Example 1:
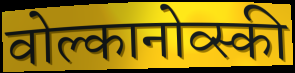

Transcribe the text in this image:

वोल्कानोव्स्की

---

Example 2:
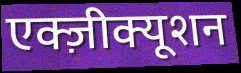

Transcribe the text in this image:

एक्ज़ीक्यूशन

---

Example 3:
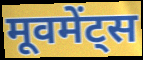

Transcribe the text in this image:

मूवमेंट्स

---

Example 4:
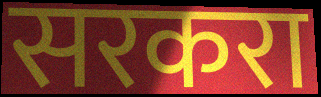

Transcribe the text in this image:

सरकरा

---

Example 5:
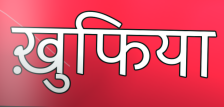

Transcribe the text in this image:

ख़ुफिया